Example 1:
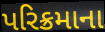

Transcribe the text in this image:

પરિક્રમાના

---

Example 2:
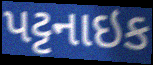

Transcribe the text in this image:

પટ્ટનાઇક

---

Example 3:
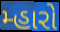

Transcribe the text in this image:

મ્હારો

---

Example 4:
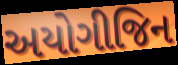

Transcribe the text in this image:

અયોગીજિન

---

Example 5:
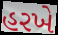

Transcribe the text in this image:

હરખે